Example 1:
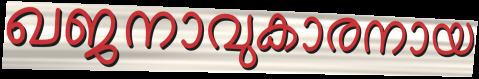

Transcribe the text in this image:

ഖജനാവുകാരനായ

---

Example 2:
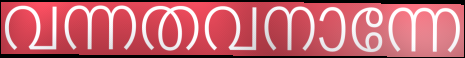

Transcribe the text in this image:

വന്നതവനാന്നേ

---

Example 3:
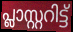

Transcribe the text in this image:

പ്ലാസ്റ്ററിട്ട്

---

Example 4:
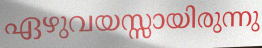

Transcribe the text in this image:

ഏഴുവയസ്സായിരുന്നു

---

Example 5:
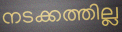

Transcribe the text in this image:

നടക്കത്തില്ല